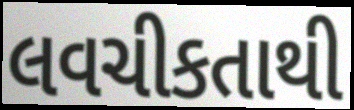
લવચીકતાથી